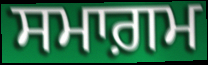
ਸਮਾਗ਼ਮ